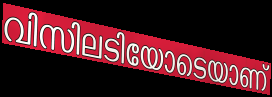
വിസിലടിയോടെയാണ്